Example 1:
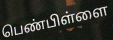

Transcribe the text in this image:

பெண்பிள்ளை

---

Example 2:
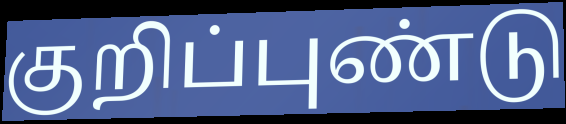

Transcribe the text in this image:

குறிப்புண்டு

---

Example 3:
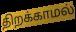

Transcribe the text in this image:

திறக்காமல்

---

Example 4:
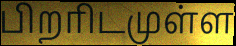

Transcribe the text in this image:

பிறரிடமுள்ள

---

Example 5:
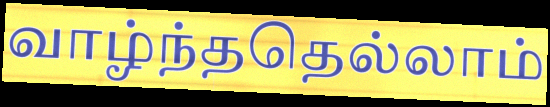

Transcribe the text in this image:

வாழ்ந்ததெல்லாம்